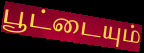
பூட்டையும்